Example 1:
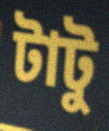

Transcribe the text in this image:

টাটু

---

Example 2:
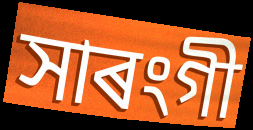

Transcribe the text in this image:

সাৰংগী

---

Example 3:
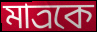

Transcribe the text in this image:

মাত্ৰকে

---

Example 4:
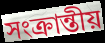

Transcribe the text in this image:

সংক্ৰান্তীয়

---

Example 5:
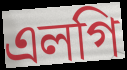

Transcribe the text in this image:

এলগি